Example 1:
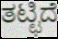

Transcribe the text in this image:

ತಟ್ಟಿದೆ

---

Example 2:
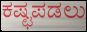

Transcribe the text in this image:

ಕಷ್ಟಪಡಲು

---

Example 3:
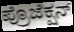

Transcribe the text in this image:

ಪ್ರೊಜೆಕ್ಷನ್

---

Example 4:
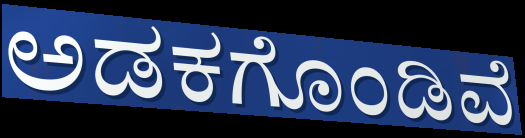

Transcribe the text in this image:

ಅಡಕಗೊಂಡಿವೆ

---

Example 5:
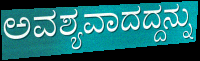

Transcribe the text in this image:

ಅವಶ್ಯವಾದದ್ದನ್ನು